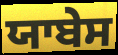
ਯਾਬੇਸ